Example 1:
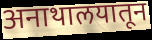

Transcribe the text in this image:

अनाथालयातून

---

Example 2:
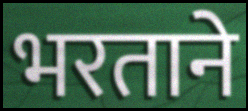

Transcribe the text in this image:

भरताने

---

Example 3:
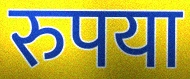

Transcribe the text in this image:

रुपया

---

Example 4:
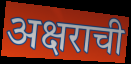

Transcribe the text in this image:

अक्षराची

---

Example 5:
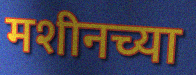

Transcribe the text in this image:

मशीनच्या